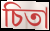
চিতা